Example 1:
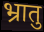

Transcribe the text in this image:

भ्रातु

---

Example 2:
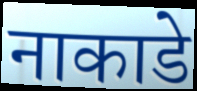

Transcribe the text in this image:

नाकाडे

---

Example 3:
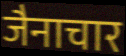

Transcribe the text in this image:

जैनाचार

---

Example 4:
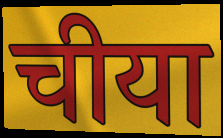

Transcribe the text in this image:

चीया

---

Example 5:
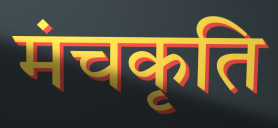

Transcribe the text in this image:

मंचकृति